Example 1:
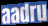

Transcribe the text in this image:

aadru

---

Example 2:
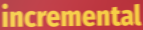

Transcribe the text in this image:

incremental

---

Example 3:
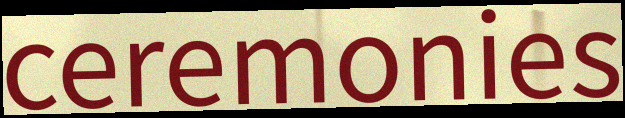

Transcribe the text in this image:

ceremonies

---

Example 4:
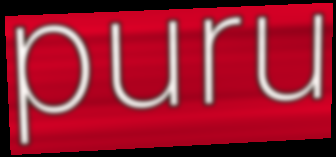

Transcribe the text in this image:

puru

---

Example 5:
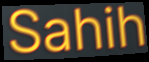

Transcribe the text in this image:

Sahih